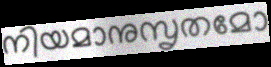
നിയമാനുസൃതമോ